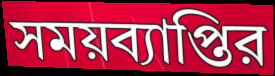
সময়ব্যাপ্তির